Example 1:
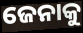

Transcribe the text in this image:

ଜେନାକୁ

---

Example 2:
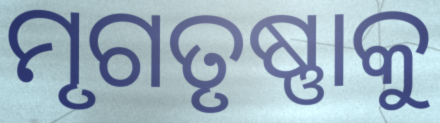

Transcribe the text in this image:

ମୃଗତୃଷ୍ଣାକୁ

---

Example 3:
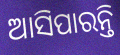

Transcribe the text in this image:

ଆସିପାରନ୍ତି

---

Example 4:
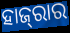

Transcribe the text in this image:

ହାଜ୍‌ରାର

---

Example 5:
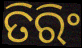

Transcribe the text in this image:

ତିରିଂ